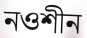
নওশীন